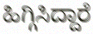
ಹಿಗ್ಗಿಸಿದ್ದಾರೆ